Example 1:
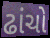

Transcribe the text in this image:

ઢાંચો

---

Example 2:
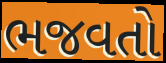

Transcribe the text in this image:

ભજવતો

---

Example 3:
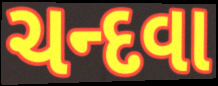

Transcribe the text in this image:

ચન્દવા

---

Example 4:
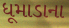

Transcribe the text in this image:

ધૂમાડાના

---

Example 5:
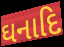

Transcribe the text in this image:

ઘનાદિ